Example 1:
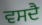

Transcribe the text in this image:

ਵਸਦੈ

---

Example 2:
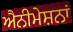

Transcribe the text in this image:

ਐਨੀਮੇਸ਼ਨਾਂ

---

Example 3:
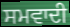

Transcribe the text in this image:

ਸਮਵਾਦੀ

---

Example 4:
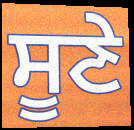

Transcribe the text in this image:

ਸੂਣੇ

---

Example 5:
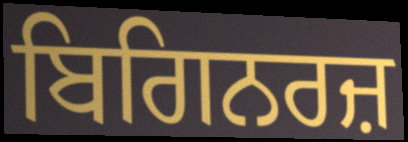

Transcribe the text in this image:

ਬਿਗਿਨਰਜ਼